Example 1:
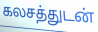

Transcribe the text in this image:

கலசத்துடன்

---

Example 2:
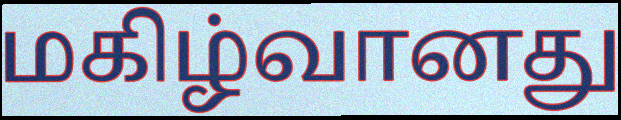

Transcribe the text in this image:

மகிழ்வானது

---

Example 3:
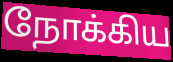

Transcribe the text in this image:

நோக்கிய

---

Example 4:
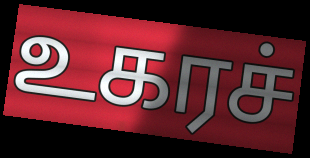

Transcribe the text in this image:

உகரச்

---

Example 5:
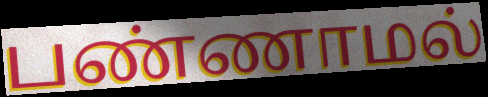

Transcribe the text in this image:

பண்ணாமல்